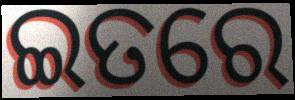
ଇତରେ